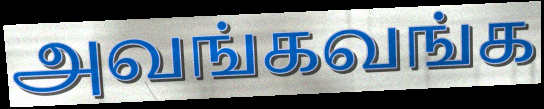
அவங்கவங்க